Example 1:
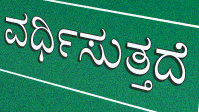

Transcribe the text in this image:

ವರ್ಧಿಸುತ್ತದೆ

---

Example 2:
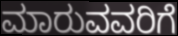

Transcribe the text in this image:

ಮಾರುವವರಿಗೆ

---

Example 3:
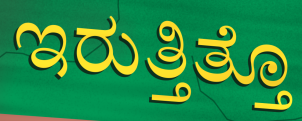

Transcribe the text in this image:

ಇರುತ್ತಿತ್ತೊ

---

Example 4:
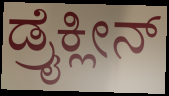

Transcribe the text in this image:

ಡ್ರೈಕ್ಲೀನ್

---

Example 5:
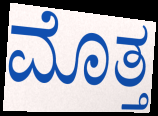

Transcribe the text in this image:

ಮೊತ್ತ